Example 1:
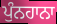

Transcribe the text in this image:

ਪੁੰਨਹਾਨਾ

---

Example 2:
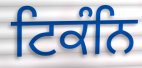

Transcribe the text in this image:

ਟਿਕੰਨਿ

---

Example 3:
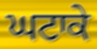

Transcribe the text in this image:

ਘਟਾਕੇ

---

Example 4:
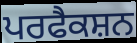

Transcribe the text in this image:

ਪਰਫੈਕਸ਼ਨ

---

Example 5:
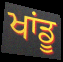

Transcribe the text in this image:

ਖਾਂਡੂ